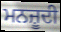
ਮਨਜ਼ੂਦੀ